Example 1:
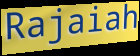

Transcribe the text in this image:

Rajaiah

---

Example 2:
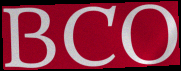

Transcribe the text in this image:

BCO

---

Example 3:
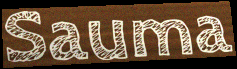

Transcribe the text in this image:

Sauma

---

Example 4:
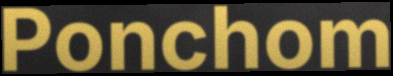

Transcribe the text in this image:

Ponchom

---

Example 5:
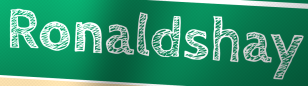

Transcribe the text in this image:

Ronaldshay